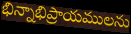
భిన్నాభిప్రాయములను